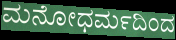
ಮನೋಧರ್ಮದಿಂದ